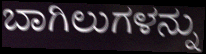
ಬಾಗಿಲುಗಳನ್ನು